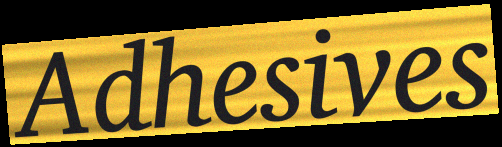
Adhesives